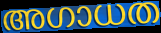
അഗാധത